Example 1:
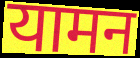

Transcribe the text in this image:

यामन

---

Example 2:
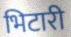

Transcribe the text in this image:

भिटारी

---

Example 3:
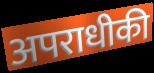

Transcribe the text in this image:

अपराधीकी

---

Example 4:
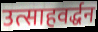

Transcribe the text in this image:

उत्साहवर्द्धन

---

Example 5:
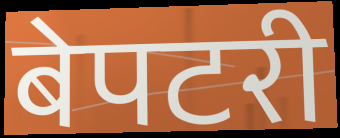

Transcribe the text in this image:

बेपटरी